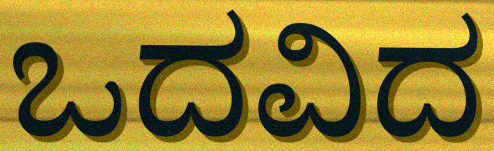
ಒದವಿದ